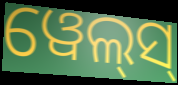
ୱେଲ୍‌ସ୍